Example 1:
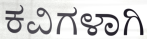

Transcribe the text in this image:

ಕವಿಗಳಾಗಿ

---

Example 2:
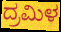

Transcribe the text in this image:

ದ್ರಮಿಳ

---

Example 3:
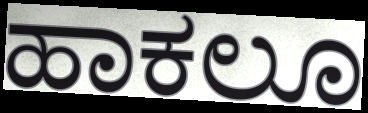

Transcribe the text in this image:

ಹಾಕಲೂ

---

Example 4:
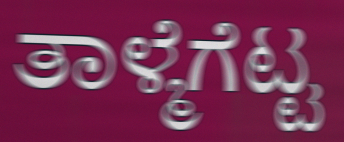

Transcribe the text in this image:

ತಾಳ್ಮೆಗೆಟ್ಟ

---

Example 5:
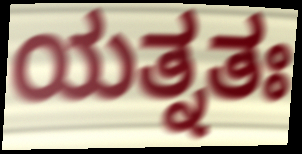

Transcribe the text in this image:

ಯತ್ನತಃ